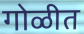
गोळीत